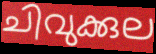
ചിവുക്കുല